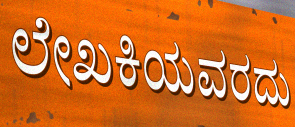
ಲೇಖಕಿಯವರದು